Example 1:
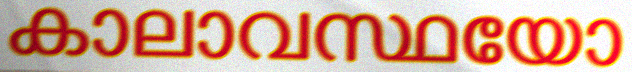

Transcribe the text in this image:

കാലാവസ്ഥയോ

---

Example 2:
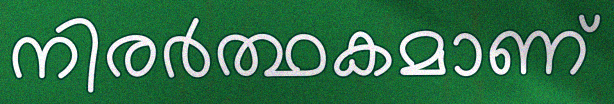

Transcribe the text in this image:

നിരർത്ഥകമാണ്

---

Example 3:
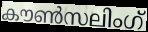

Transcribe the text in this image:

കൗൺസലിംഗ്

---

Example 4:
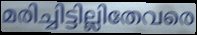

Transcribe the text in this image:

മരിച്ചിട്ടില്ലിതേവരെ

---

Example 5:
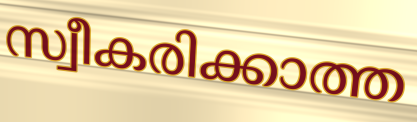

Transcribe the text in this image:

സ്വീകരിക്കാത്ത